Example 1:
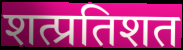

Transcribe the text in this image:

शत्प्रतिशत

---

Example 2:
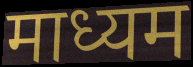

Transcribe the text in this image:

माध्यम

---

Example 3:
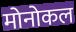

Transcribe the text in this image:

मोनोकल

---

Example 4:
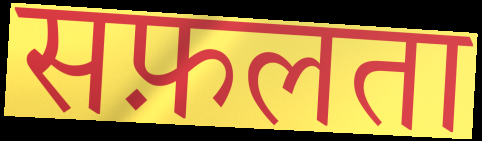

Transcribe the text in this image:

सफ़लता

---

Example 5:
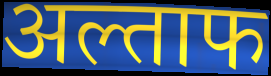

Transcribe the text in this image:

अल्ताफ